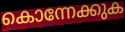
കൊന്നേക്കുക